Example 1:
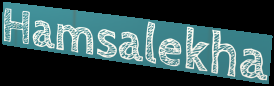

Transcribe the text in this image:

Hamsalekha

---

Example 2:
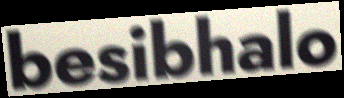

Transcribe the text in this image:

besibhalo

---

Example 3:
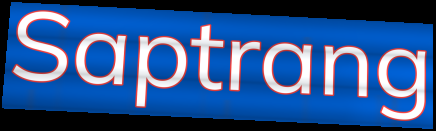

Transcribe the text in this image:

Saptrang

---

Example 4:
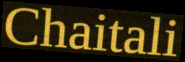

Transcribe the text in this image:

Chaitali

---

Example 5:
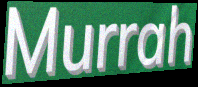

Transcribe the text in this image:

Murrah